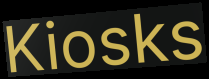
Kiosks